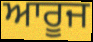
ਆਰੂਜ